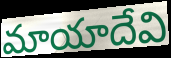
మాయాదేవి